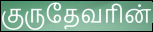
குருதேவரின்